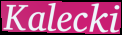
Kalecki